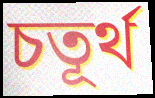
চতূর্থ